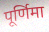
पूर्णिमा